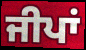
ਜੀਪਾਂ